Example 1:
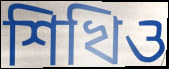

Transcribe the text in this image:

শিখিও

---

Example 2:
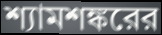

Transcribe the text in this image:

শ্যামশঙ্করের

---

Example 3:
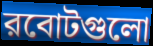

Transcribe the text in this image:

রবোটগুলো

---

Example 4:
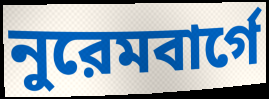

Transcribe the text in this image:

নুরেমবার্গে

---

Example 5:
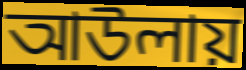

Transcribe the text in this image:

আউলায়